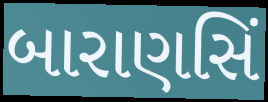
બારાણસિં